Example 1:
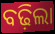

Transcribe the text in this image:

ବଢ଼ିଲା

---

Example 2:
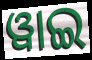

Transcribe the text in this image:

ୱାଇ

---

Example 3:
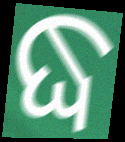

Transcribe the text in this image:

ଦ୍ଧ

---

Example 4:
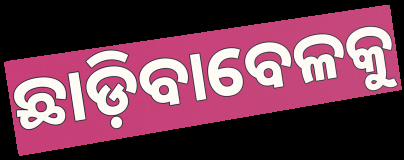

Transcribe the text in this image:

ଛାଡ଼ିବାବେଳକୁ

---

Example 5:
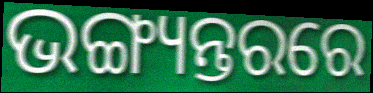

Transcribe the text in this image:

ଭଙ୍ଗ୍ୟନ୍ତରରେ